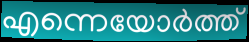
എന്നെയോർത്ത്